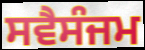
ਸਵੈਸੰਜਮ